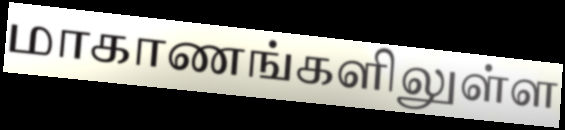
மாகாணங்களிலுள்ள